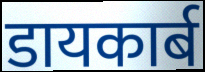
डायकार्ब